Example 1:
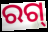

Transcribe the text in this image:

ରଗ୍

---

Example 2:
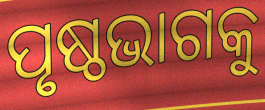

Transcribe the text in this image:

ପୃଷ୍ଠଭାଗକୁ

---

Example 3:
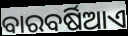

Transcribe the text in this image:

ବାରବର୍ଷିଆଏ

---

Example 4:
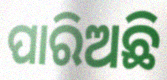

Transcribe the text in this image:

ପାରିଅଛି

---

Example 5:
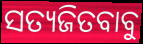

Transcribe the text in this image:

ସତ୍ୟଜିତବାବୁ